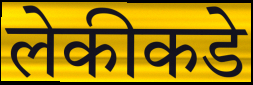
लेकीकडे